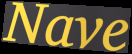
Nave